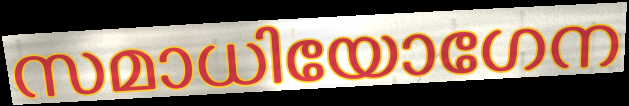
സമാധിയോഗേന